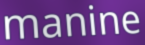
manine